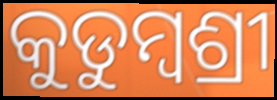
କୁଡୁମ୍ବଶ୍ରୀ